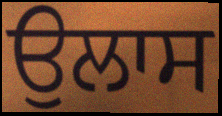
ਉਲਾਸ